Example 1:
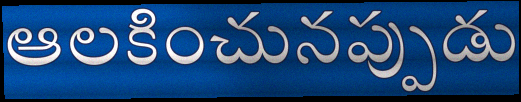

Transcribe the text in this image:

ఆలకించునప్పుడు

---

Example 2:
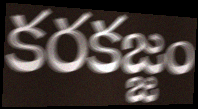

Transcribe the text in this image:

కరకజ్జం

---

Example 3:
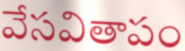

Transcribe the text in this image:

వేసవితాపం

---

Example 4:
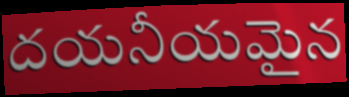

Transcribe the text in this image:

దయనీయమైన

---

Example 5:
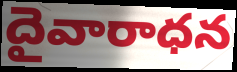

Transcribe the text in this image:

దైవారాధన